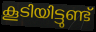
കൂടിയിട്ടുണ്ട്